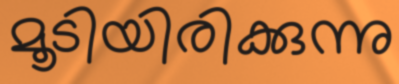
മൂടിയിരിക്കുന്നു